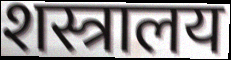
शस्त्रालय